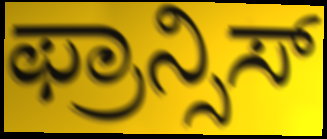
ಫ್ರಾನ್ಸಿಸ್